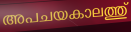
അപചയകാലത്തു്